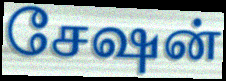
சேஷன்